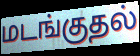
மடங்குதல்